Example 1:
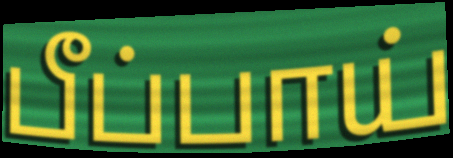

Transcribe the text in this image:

பீப்பாய்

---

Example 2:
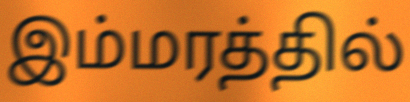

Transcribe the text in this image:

இம்மரத்தில்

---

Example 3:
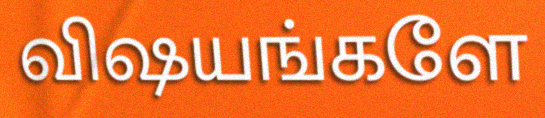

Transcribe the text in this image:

விஷயங்களே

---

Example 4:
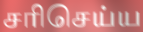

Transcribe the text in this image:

சரிசெய்ய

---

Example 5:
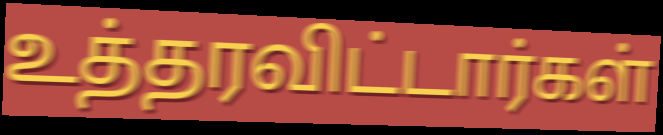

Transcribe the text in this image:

உத்தரவிட்டார்கள்